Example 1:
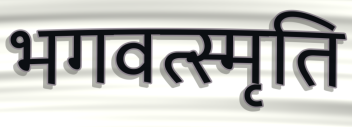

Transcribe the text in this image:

भगवत्स्मृति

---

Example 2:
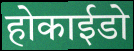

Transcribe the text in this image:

होकाईडो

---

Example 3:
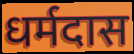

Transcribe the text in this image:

धर्मदास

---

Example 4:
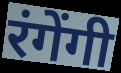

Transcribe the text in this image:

रंगेंगी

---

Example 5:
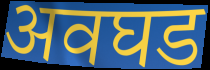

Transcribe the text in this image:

अवघड